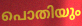
പൊതിയും